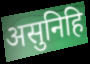
असुनिहि